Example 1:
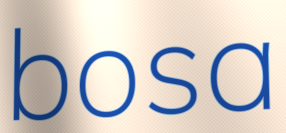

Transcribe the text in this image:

bosa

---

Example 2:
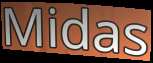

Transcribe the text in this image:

Midas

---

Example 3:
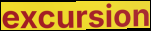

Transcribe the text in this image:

excursion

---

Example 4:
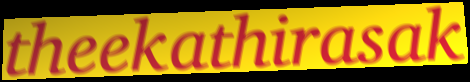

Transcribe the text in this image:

theekathirasak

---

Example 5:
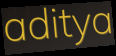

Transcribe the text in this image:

aditya